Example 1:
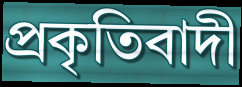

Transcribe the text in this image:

প্ৰকৃতিবাদী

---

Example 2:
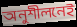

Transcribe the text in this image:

অনুশীলনেই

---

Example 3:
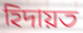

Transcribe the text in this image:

হিদায়ত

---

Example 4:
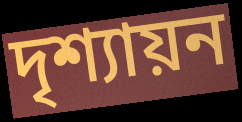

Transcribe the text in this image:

দৃশ্যায়ন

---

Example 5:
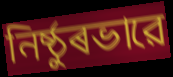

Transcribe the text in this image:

নিষ্ঠুৰভাৱে